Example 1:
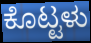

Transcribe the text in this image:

ಕೊಟ್ಟಳು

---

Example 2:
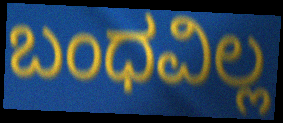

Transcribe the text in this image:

ಬಂಧವಿಲ್ಲ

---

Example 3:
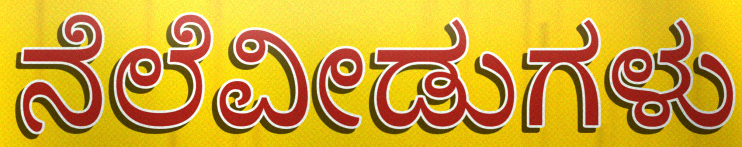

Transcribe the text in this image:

ನೆಲೆವೀಡುಗಳು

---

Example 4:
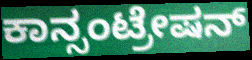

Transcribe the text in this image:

ಕಾನ್ಸಂಟ್ರೇಷನ್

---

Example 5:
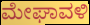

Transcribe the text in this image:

ಮೇಘಾವಳಿ